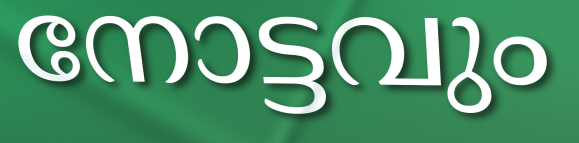
നോട്ടവും